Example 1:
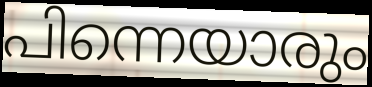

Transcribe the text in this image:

പിന്നെയാരും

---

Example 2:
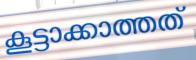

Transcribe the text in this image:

കൂട്ടാക്കാത്തത്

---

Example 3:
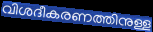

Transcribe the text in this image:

വിശദീകരണത്തിനുള്ള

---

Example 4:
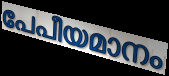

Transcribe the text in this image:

പേപീയമാനം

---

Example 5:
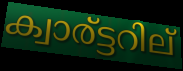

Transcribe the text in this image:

ക്വാര്ട്ടറില്